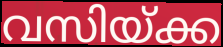
വസിയ്ക്ക